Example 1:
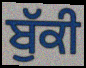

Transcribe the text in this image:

ਬੁੱਕੀ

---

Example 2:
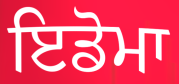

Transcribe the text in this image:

ਇਡੋਮਾ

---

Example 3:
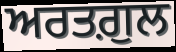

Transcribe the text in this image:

ਅਰਤਗ਼ੁਲ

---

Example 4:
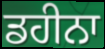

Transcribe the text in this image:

ਡਹੀਨਾ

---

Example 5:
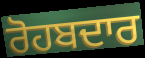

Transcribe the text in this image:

ਰੋਹਬਦਾਰ